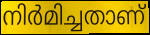
നിർമിച്ചതാണ്